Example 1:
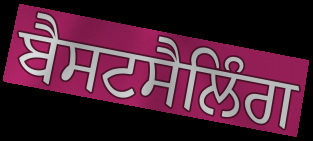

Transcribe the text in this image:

ਬੈਸਟਸੈਲਿੰਗ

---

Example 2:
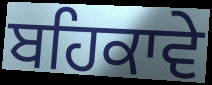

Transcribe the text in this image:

ਬਹਿਕਾਵੇ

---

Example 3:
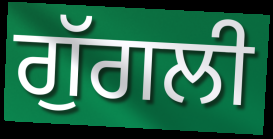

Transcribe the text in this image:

ਗੁੱਗਲੀ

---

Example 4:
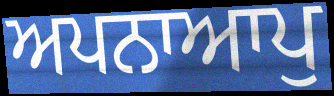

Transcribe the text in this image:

ਅਪਨਾਆਪੁ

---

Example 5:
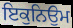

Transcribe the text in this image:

ਇਕੁਨਿਉਮ